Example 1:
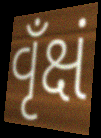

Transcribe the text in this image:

વૃઁક્ષં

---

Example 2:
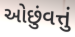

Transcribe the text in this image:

ઓછુંવત્તું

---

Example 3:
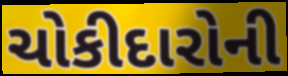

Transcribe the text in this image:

ચોકીદારોની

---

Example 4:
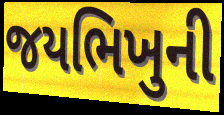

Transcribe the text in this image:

જયભિખુની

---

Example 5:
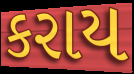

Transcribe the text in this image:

કરાય